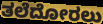
ತಲೆದೋರಲು